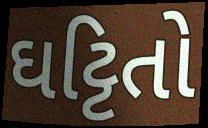
ઘટ્ટિતો